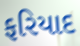
ફરિયાદ